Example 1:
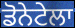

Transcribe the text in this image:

ਡੋਨੇਟੇਲਾ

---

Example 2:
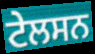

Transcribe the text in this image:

ਟੇਲਸਨ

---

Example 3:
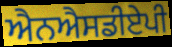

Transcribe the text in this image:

ਐਨਐਸਡੀਏਪੀ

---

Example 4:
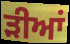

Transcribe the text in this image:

ੜੀਆਂ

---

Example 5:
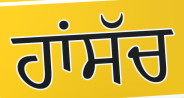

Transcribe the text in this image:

ਹਾਂਸੱਚ